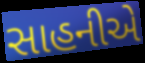
સાહનીએ